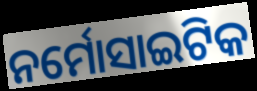
ନର୍ମୋସାଇଟିକ